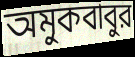
অমুকবাবুর